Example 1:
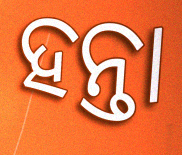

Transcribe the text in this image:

ହନ୍ତା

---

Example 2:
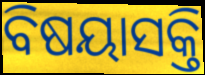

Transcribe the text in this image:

ବିଷୟାସକ୍ତି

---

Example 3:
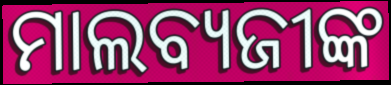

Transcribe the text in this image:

ମାଲବ୍ୟଜୀଙ୍କ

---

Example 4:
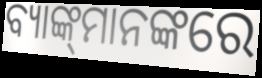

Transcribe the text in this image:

ବ୍ୟାଙ୍କ୍‌ମାନଙ୍କରେ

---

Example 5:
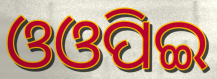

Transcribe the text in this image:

ଓଓପିଇ